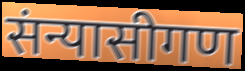
संन्यासीगण